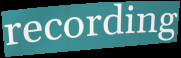
recording